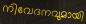
നിവേദനവുമായി